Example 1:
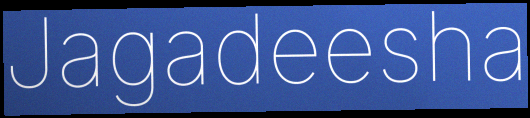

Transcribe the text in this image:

Jagadeesha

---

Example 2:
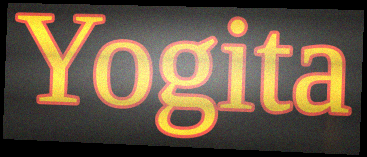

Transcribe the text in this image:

Yogita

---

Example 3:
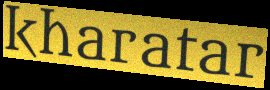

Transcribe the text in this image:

kharatar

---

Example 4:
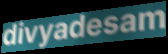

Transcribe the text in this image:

divyadesam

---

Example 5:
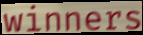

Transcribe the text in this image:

winners